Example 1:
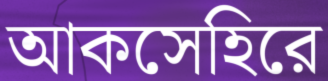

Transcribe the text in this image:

আকসেহিরে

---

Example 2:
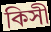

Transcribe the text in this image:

কিসী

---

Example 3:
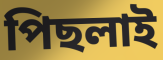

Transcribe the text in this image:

পিছলাই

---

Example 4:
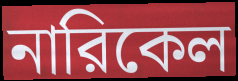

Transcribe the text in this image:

নারিকেল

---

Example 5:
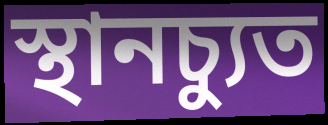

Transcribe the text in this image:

স্থানচ্যুত